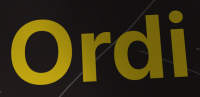
Ordi